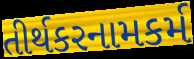
તીર્થકરનામકર્મ